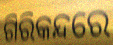
ଗିରିକନ୍ଦରେ